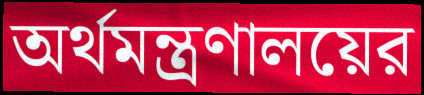
অর্থমন্ত্রণালয়ের